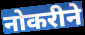
नोकरीने